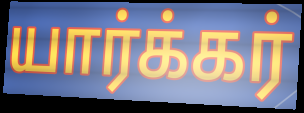
யார்க்கர்